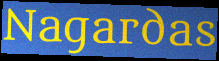
Nagardas